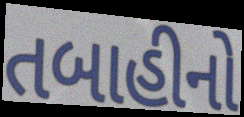
તબાહીનો